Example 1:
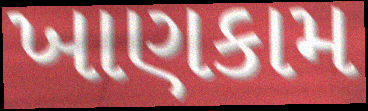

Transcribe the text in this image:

ખાણકામ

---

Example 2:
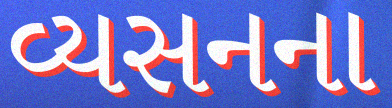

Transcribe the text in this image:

વ્યસનના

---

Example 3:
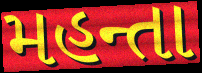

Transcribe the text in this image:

મહન્તા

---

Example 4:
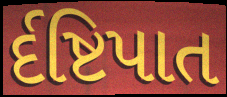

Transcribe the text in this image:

ર્દષ્ટિપાત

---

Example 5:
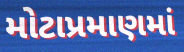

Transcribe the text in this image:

મોટાપ્રમાણમાં